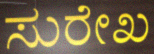
ಸುರೇಖ